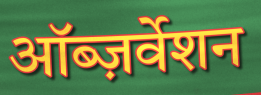
ऑब्ज़र्वेशन